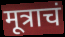
मूत्राचं